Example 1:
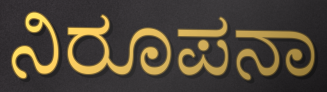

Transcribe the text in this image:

ನಿರೂಪನಾ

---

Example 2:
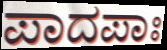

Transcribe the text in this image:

ಪಾದಪಾಃ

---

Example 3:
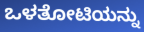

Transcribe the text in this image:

ಒಳತೋಟಿಯನ್ನು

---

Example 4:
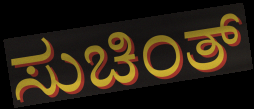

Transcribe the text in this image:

ಸುಚಿಂತ್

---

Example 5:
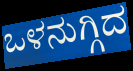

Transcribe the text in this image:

ಒಳನುಗ್ಗಿದ